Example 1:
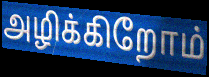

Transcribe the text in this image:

அழிக்கிறோம்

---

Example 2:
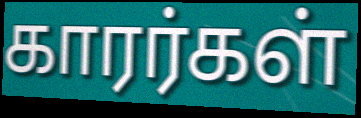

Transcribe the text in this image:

காரர்கள்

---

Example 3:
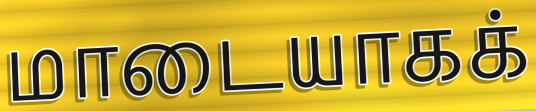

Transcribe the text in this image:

மாடையாகக்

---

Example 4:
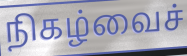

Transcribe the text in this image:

நிகழ்வைச்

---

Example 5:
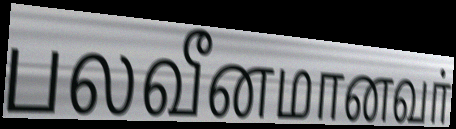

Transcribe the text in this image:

பலவீனமானவர்